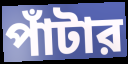
পাঁটার